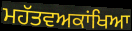
ਮਹੱਤਵਅਕਾਂਖਿਆ